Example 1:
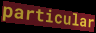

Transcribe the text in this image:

particular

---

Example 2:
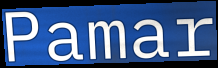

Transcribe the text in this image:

Pamar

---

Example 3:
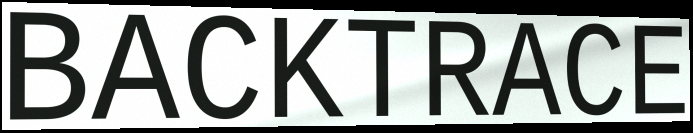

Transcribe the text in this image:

BACKTRACE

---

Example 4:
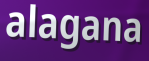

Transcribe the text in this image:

alagana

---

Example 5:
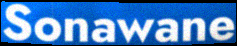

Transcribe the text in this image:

Sonawane